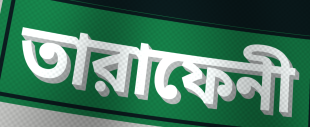
তারাফেনী